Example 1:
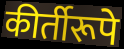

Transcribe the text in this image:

कीर्तीरूपे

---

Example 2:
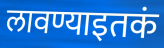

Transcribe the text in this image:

लावण्याइतकं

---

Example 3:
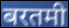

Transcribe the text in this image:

बरतमी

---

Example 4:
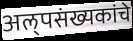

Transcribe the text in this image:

अल्पसंख्यकांचे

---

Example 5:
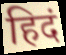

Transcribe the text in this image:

हिदं